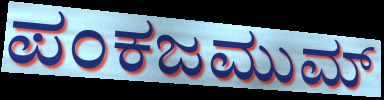
ಪಂಕಜಮುಮ್